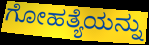
ಗೋಹತ್ಯೆಯನ್ನು